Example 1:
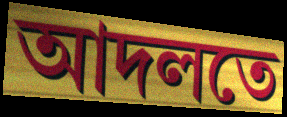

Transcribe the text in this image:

আদলতে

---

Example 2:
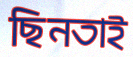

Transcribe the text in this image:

ছিনতাই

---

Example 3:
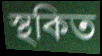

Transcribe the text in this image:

স্থকিত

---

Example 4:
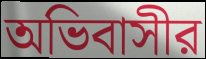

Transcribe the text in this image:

অভিবাসীর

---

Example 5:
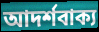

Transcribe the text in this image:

আদর্শবাক্য